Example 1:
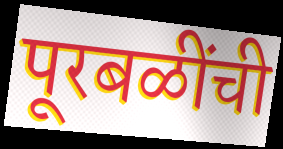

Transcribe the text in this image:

पूरबळींची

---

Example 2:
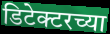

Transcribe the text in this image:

डिटेक्टरच्या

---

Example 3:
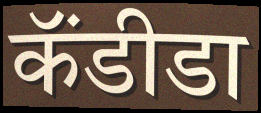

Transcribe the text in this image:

कॅंडीडा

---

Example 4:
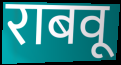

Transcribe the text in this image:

राबवू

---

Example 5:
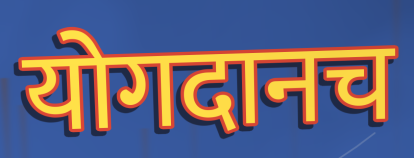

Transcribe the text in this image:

योगदानच